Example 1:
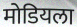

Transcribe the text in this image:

मोडियला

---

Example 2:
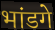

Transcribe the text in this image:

भांडगे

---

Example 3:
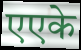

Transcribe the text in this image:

एएके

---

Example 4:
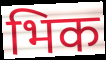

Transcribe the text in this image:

भिक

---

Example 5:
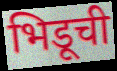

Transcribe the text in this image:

भिडूची